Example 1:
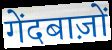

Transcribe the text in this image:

गेंदबाज़ों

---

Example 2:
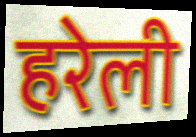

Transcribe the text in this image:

हरेली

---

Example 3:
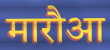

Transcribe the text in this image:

मारौआ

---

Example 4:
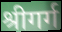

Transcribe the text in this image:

श्रीगर्ग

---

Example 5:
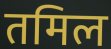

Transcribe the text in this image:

तमिल